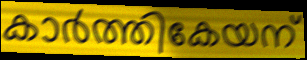
കാർത്തികേയന്